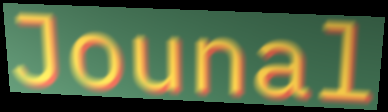
Jounal